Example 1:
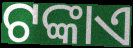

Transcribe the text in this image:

ଟଙ୍କାଏ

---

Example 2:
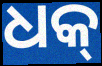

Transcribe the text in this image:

ଧକ୍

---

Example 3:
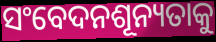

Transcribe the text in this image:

ସଂବେଦନଶୂନ୍ୟତାକୁ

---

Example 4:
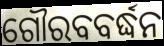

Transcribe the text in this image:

ଗୌରବବର୍ଦ୍ଧନ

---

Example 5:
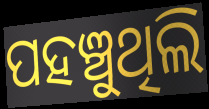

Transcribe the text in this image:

ପହଞ୍ଚୁଥିଲି